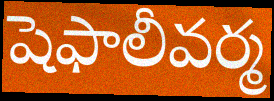
షెఫాలీవర్మ